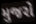
મુજરો